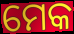
ମେକ